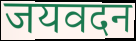
जयवदन